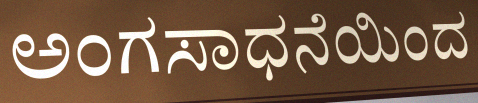
ಅಂಗಸಾಧನೆಯಿಂದ